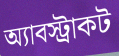
অ্যাবস্ট্রাকট